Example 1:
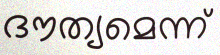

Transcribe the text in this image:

ദൗത്യമെന്ന്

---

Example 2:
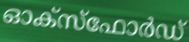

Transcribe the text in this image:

ഓക്സ്ഫോർഡ്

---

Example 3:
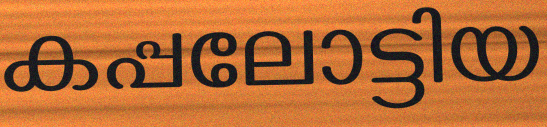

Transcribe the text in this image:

കപ്പലോട്ടിയ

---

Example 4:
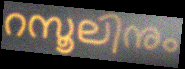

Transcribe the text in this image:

റസൂലിനും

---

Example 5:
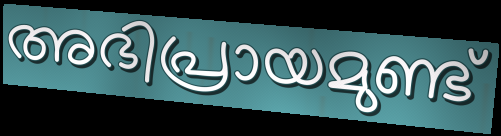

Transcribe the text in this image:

അഭിപ്രായമുണ്ട്